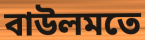
বাউলমতে